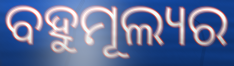
ବହୁମୂଲ୍ୟର